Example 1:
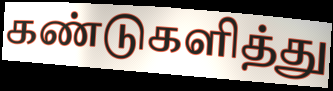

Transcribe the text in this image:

கண்டுகளித்து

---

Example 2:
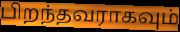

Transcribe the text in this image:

பிறந்தவராகவும்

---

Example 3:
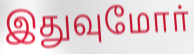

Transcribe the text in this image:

இதுவுமோர்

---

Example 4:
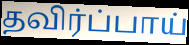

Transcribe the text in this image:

தவிர்ப்பாய்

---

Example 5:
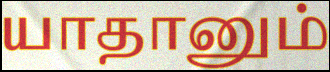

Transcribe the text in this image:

யாதானும்